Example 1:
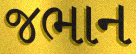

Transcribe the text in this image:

જભાન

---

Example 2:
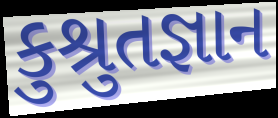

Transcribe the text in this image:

કુશ્રુતજ્ઞાન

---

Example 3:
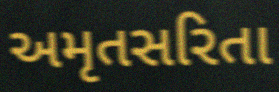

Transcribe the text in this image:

અમૃતસરિતા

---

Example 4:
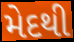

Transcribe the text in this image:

મેદથી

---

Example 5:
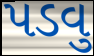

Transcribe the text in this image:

પડવુ